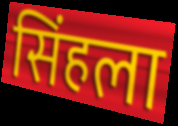
सिंहला